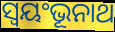
ସ୍ଵୟଂଭୂନାଥ